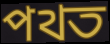
পথত